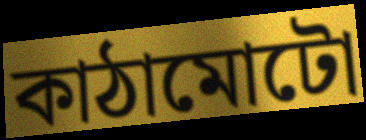
কাঠামোটো